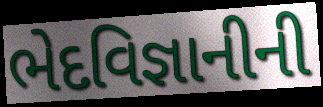
ભેદવિજ્ઞાનીની